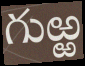
గుఱ్ఱ